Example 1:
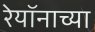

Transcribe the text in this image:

रेयॉनाच्या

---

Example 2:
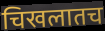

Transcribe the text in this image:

चिखलातच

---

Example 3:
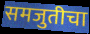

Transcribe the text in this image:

समजुतीचा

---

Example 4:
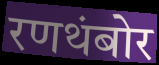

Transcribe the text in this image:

रणथंबोर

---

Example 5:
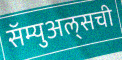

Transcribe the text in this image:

सॅम्युअल्सची